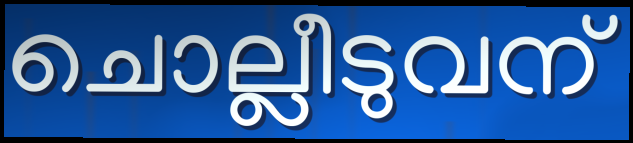
ചൊല്ലീടുവന്